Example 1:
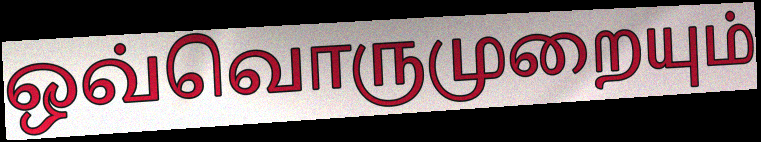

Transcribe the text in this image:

ஒவ்வொருமுறையும்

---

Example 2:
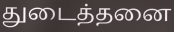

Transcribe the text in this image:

துடைத்தனை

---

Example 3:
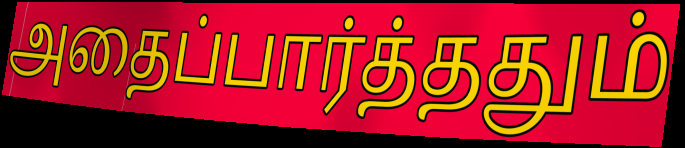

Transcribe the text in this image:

அதைப்பார்த்ததும்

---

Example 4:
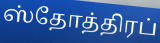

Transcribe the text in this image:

ஸ்தோத்திரப்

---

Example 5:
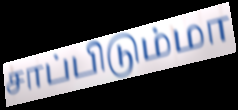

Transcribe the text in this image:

சாப்பிடும்மா